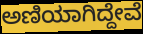
ಅಣಿಯಾಗಿದ್ದೇವೆ